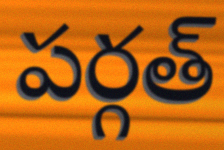
పర్గత్